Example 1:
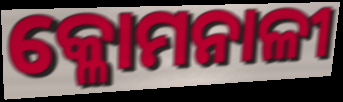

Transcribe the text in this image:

କ୍ଳୋମନାଳୀ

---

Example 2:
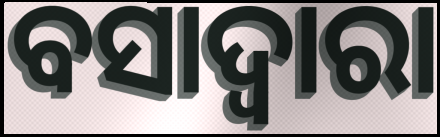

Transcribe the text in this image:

ବସାଦ୍ୱାରା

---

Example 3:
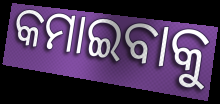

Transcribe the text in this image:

କମାଇବାକୁ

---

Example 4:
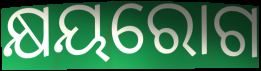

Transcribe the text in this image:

କ୍ଷୟରୋଗ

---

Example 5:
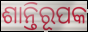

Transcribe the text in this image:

ଶାନ୍ତିରୂପକ